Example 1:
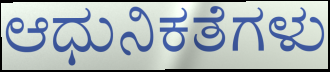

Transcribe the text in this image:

ಆಧುನಿಕತೆಗಳು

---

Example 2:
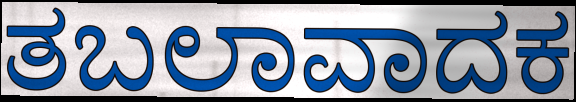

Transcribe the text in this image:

ತಬಲಾವಾದಕ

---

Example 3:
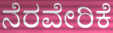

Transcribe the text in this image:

ನೆರವೇರಿಕೆ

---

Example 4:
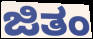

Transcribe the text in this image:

ಜಿತಂ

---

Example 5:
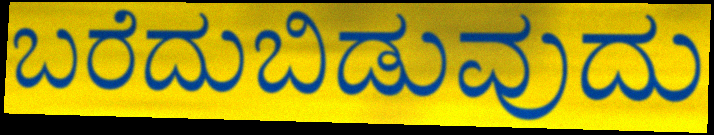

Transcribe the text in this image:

ಬರೆದುಬಿಡುವುದು